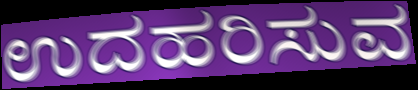
ಉದಹರಿಸುವ